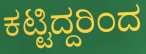
ಕಟ್ಟಿದ್ದರಿಂದ